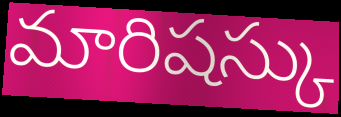
మారిషస్కు